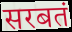
सरबतं